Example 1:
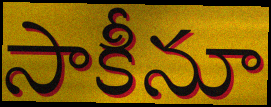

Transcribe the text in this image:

సాకీనూ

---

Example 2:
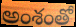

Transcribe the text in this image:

అంశంతో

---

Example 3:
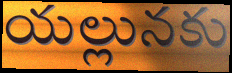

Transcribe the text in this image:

యల్లునకు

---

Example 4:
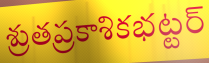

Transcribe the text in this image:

శ్రుతప్రకాశికభట్టర్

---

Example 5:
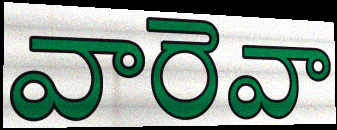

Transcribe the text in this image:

వారెవా